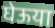
घेऊया